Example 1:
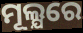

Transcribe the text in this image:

ମୂଲ୍ଯରେ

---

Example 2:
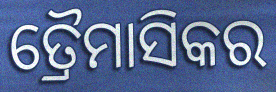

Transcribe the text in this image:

ତ୍ରୈମାସିକର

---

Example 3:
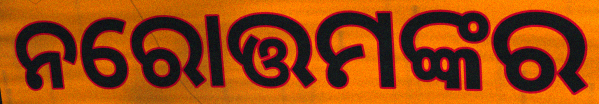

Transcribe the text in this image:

ନରୋତ୍ତମଙ୍କର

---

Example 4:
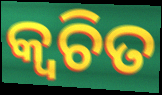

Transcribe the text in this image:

କ୍ୱଚିତ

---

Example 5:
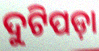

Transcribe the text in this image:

ଦୁଟିପଡ଼ା